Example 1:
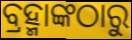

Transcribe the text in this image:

ବ୍ରହ୍ମାଙ୍କଠାରୁ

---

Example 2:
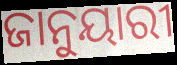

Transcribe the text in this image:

ଜାନୁୟାରୀ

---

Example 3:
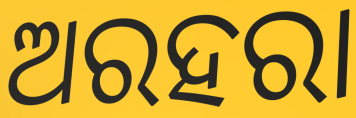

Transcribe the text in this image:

ଅରହରା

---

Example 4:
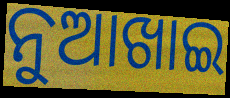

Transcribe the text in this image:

ନୁଆଖାଇ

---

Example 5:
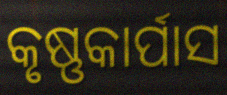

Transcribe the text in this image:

କୃଷ୍ଣକାର୍ପାସ